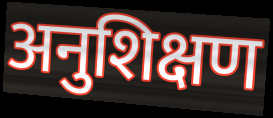
अनुशिक्षण